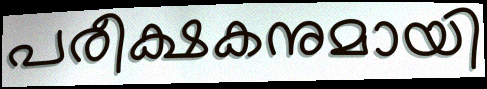
പരീക്ഷകനുമായി